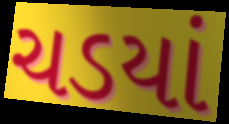
ચડયાં